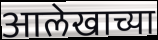
आलेखाच्या